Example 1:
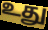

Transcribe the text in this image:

உது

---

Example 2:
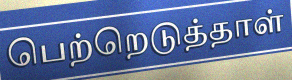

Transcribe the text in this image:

பெற்றெடுத்தாள்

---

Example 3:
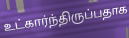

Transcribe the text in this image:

உட்கார்ந்திருப்பதாக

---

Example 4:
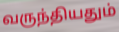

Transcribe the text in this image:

வருந்தியதும்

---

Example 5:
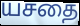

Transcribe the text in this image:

யசதை